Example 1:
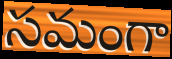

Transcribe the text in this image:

సమంగా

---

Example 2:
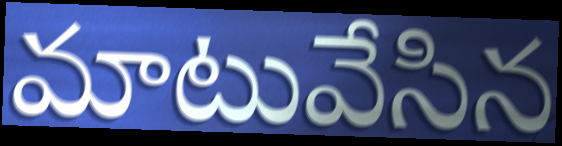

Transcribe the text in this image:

మాటువేసిన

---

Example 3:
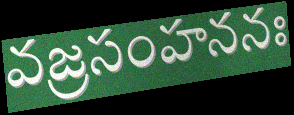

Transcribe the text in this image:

వజ్రసంహననః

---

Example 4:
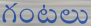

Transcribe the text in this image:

గంటలు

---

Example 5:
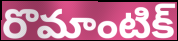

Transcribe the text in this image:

రొమాంటిక్